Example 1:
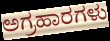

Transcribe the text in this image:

ಅಗ್ರಹಾರಗಳು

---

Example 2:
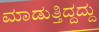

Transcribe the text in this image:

ಮಾಡುತ್ತಿದ್ದದ್ದು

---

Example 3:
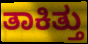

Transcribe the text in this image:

ತಾಕಿತ್ತು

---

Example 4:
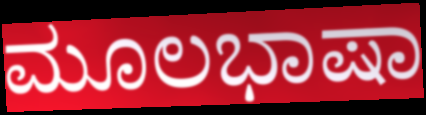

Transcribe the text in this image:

ಮೂಲಭಾಷಾ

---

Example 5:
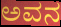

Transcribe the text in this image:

ಅವನ